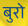
बुरो